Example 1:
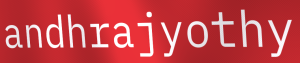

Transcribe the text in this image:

andhrajyothy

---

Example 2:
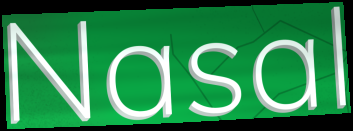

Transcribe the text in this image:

Nasal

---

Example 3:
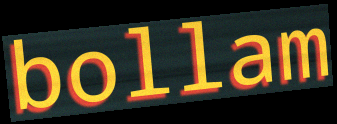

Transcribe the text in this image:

bollam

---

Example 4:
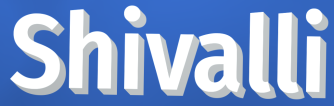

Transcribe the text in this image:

Shivalli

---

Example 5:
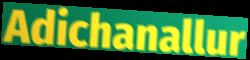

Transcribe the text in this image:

Adichanallur